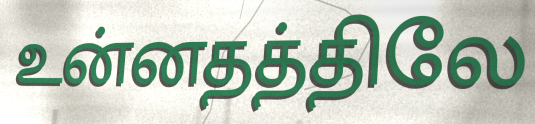
உன்னதத்திலே